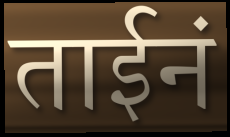
ताईनं